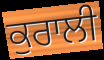
ਕੁਰਾਲੀ